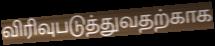
விரிவுபடுத்துவதற்காக